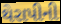
થેરાપીની